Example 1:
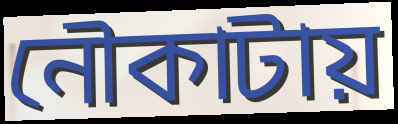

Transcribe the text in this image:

নৌকাটায়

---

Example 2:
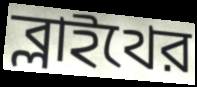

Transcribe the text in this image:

ব্লাইথের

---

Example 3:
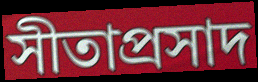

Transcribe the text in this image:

সীতাপ্রসাদ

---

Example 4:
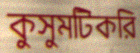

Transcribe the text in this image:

কুসুমটিকরি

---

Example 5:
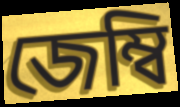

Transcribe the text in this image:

জেম্বি